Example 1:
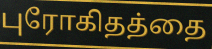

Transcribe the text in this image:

புரோகிதத்தை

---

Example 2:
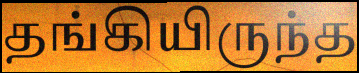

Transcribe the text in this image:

தங்கியிருந்த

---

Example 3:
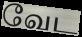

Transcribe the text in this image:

வேட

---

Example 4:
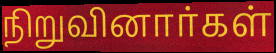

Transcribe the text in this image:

நிறுவினார்கள்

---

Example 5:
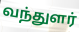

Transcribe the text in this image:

வந்துளர்